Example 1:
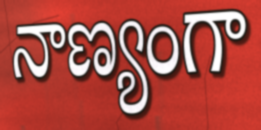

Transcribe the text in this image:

నాణ్యంగా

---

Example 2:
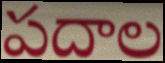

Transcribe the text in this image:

పదాల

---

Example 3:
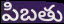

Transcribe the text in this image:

పిబతు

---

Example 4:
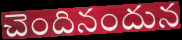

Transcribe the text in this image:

చెందినందున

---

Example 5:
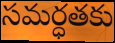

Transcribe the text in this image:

సమర్ధతకు